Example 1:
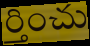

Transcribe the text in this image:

ర్తించు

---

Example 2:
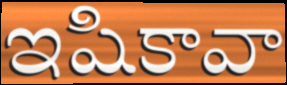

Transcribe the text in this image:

ఇషికావా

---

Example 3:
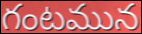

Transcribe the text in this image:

గంటమున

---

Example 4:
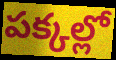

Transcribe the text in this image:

పక్కల్లో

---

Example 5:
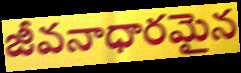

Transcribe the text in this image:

జీవనాధారమైన